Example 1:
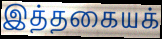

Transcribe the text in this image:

இத்தகையக்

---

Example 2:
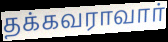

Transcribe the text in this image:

தக்கவராவார்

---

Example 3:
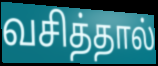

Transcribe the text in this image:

வசித்தால்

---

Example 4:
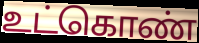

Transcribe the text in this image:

உட்கொண்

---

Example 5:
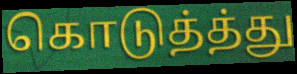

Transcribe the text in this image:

கொடுத்த்து